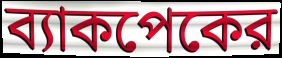
ব্যাকপেকের